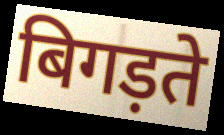
बिगड़ते